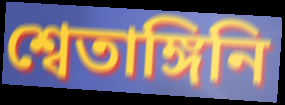
শ্বেতাঙ্গিনি